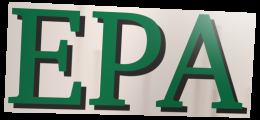
EPA